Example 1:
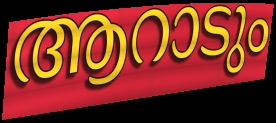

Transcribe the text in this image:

ആറാടും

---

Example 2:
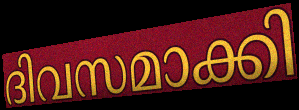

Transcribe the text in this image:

ദിവസമാക്കി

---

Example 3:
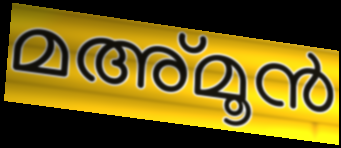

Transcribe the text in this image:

മഅ്മൂൻ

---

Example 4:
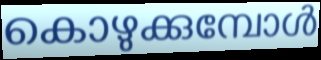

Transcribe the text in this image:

കൊഴുക്കുമ്പോൾ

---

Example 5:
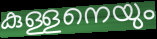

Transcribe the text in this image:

കുള്ളനെയും